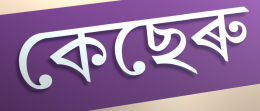
কেছেৰু